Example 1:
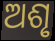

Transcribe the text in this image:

ଅଶୃ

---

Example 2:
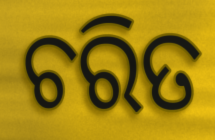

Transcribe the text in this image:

ଚରିତ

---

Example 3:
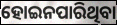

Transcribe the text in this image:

ହୋଇନପାରିଥିବା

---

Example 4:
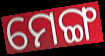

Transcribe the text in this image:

ମେଙ୍ଗ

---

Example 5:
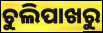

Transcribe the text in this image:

ଚୁଲିପାଖରୁ